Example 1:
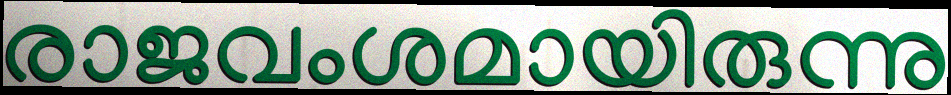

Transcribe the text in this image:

രാജവംശമായിരുന്നു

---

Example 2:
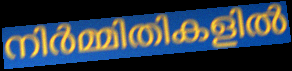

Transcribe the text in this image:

നിർമ്മിതികളിൽ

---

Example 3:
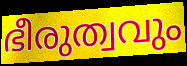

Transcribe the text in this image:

ഭീരുത്വവും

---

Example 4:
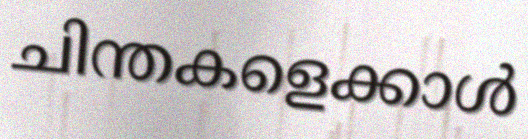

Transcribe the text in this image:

ചിന്തകളെക്കാൾ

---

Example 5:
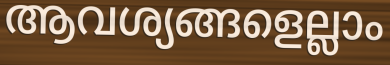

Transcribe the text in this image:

ആവശ്യങ്ങളെല്ലാം